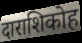
दाराशिकोह